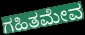
ಗಹಿತಮೇವ